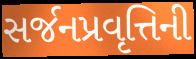
સર્જનપ્રવૃત્તિની